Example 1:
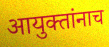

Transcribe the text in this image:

आयुक्तांनाच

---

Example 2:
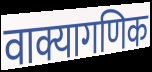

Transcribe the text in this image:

वाक्यागणिक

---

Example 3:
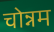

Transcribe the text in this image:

चोन्नम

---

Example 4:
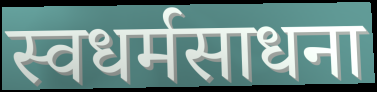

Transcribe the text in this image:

स्वधर्मसाधना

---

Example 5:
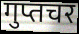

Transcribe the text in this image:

गुप्तचर